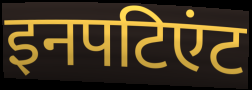
इनपटिएंट